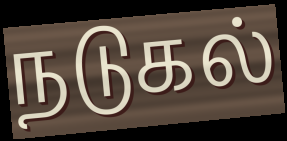
நடுகல்